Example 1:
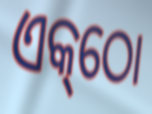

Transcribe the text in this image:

ଏକ୍‌ଠୋ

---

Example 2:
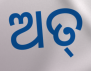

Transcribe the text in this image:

ଅତ୍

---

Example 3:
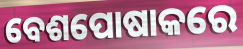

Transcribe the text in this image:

ବେଶପୋଷାକରେ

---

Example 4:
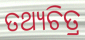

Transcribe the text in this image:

ତଥ୍ୟଚିତ୍ର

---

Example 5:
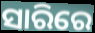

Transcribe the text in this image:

ସାରିରେ